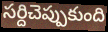
సర్దిచెప్పుకుంది